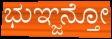
ಭುಞ್ಜನ್ತೋ